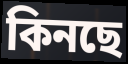
কিনছে